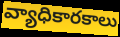
వ్యాధికారకాలు